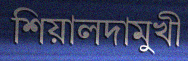
শিয়ালদামুখী